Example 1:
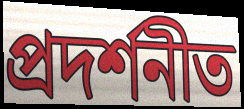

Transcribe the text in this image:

প্ৰদৰ্শনীত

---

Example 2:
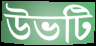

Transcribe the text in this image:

উভটি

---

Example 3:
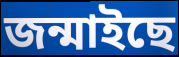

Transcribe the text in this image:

জন্মাইছে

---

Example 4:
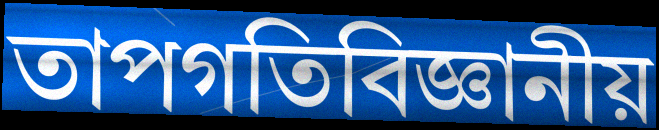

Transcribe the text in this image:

তাপগতিবিজ্ঞানীয়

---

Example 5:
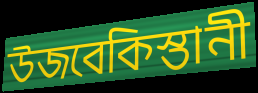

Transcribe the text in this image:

উজবেকিস্তানী